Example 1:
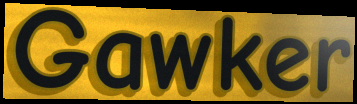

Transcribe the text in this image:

Gawker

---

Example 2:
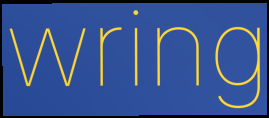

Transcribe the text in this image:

wring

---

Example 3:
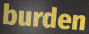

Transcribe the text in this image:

burden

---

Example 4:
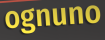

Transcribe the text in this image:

ognuno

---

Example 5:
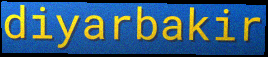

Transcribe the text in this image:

diyarbakir